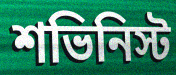
শভিনিস্ট